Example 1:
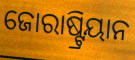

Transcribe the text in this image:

ଜୋରାଷ୍ଟ୍ରିୟାନ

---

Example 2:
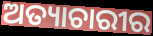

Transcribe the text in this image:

ଅତ୍ୟାଚାରୀର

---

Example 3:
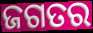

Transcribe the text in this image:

ଜଗତର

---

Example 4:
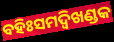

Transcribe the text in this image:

ବହିଃସମଦ୍ୱିଖଣ୍ଡକ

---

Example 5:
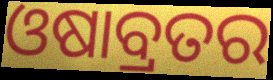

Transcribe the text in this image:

ଓଷାବ୍ରତର